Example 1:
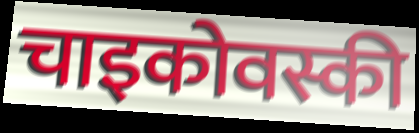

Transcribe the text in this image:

चाइकोवस्की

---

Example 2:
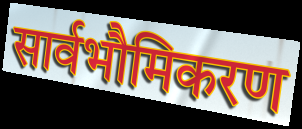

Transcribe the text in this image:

सार्वभौमिकरण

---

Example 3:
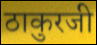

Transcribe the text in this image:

ठाकुरजी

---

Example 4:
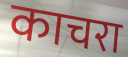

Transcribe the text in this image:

काचरा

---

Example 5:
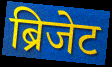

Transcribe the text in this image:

ब्रिजेट